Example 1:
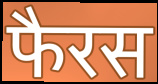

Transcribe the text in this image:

फैरस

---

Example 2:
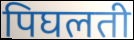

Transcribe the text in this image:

पिघलती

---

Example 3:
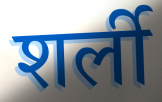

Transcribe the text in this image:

शर्ली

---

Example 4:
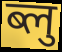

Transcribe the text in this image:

ब्लु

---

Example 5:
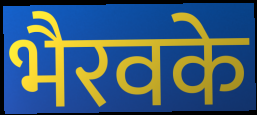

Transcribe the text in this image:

भैरवके